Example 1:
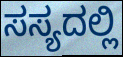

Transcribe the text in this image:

ಸಸ್ಯದಲ್ಲಿ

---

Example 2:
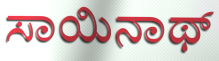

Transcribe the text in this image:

ಸಾಯಿನಾಥ್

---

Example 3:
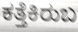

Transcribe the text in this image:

ಕತ್ತೆಕಿರುಬ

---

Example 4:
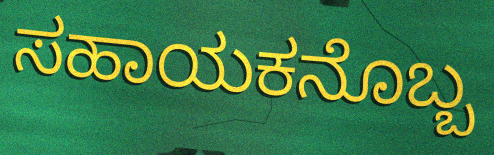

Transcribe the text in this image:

ಸಹಾಯಕನೊಬ್ಬ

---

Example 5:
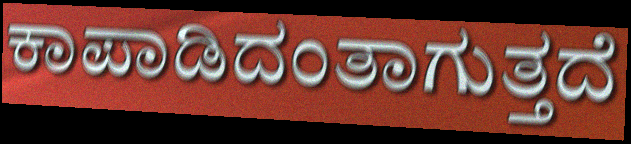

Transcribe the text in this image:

ಕಾಪಾಡಿದಂತಾಗುತ್ತದೆ